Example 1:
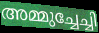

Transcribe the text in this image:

അമ്മുച്ചേച്ചി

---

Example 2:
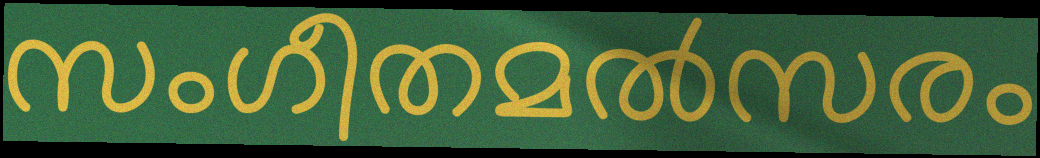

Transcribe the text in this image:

സംഗീതമൽസരം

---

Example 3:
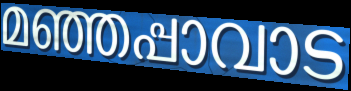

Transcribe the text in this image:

മഞ്ഞപ്പാവാട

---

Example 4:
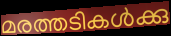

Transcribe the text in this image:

മരത്തടികൾക്കു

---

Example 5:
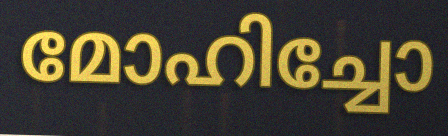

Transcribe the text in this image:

മോഹിച്ചോ